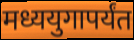
मध्ययुगापर्यंत